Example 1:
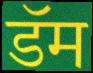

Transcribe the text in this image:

डॅम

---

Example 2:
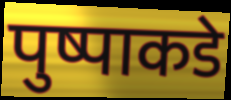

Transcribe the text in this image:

पुष्पाकडे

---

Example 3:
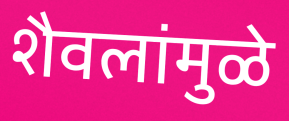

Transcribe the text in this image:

शैवलांमुळे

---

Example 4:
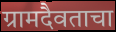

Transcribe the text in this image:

ग्रामदैवताचा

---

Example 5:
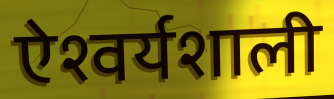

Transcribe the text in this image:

ऐश्वर्यशाली